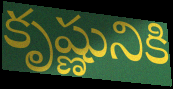
కృష్ణునికి